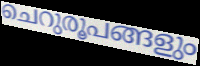
ചെറുരൂപങ്ങളും